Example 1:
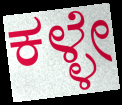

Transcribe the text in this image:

ಕಳ್ಳೇ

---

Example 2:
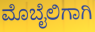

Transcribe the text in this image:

ಮೊಬೈಲಿಗಾಗಿ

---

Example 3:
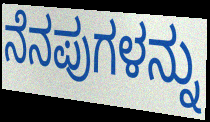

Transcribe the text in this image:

ನೆನಪುಗಳನ್ನು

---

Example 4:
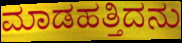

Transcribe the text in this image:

ಮಾಡಹತ್ತಿದನು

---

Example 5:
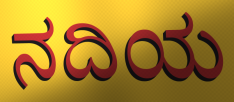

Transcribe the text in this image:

ನದಿಯ